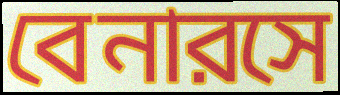
বেনারসে